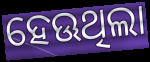
ହେଊଥିଲା